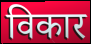
विकार